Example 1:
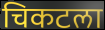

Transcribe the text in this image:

चिकटला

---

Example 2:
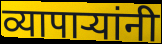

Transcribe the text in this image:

व्यापाऱ्यांनी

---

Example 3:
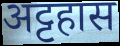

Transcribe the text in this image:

अट्टहास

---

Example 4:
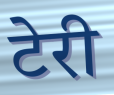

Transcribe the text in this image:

टेरी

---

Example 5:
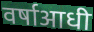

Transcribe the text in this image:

वर्षाआधी